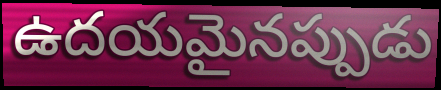
ఉదయమైనప్పుడు